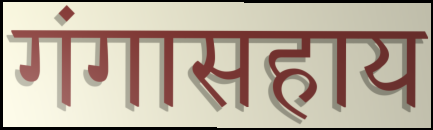
गंगासहाय